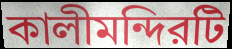
কালীমন্দিরটি